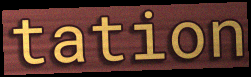
tation